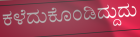
ಕಳೆದುಕೊಂಡಿದ್ದುದು